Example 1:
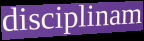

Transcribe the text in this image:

disciplinam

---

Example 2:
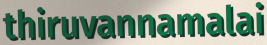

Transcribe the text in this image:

thiruvannamalai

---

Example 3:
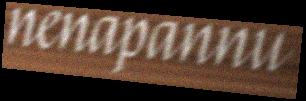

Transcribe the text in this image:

nenapannu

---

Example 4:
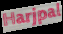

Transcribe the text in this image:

Harjpal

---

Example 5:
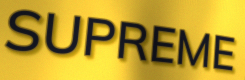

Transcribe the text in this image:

SUPREME